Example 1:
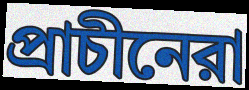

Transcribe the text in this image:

প্রাচীনেরা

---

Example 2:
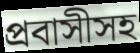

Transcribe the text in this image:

প্রবাসীসহ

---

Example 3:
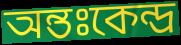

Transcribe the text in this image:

অন্তঃকেন্দ্র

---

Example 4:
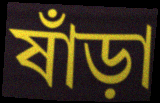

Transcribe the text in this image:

ষাঁড়া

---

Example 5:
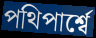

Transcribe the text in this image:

পথিপার্শ্বে